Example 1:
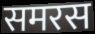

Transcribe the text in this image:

समरस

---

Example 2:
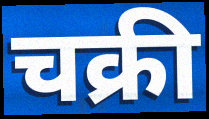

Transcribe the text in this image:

चक्री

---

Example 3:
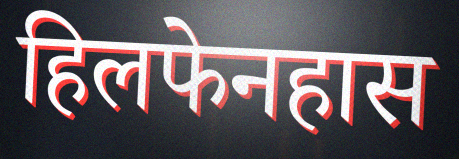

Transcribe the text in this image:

हिलफेनहास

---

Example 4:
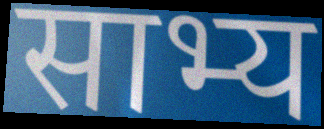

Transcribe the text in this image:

साभ्य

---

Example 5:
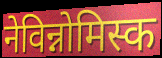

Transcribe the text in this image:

नेविन्नोमिस्क